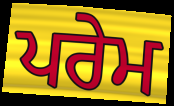
ਪਰੇਮ